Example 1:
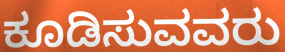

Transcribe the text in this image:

ಕೂಡಿಸುವವರು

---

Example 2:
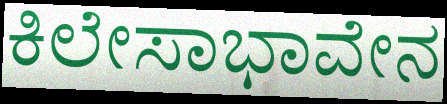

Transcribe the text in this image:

ಕಿಲೇಸಾಭಾವೇನ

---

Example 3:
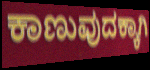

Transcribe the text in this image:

ಕಾಣುವುದಕ್ಕಾಗಿ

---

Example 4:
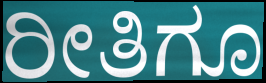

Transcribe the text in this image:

ರೀತಿಗೂ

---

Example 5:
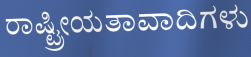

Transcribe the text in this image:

ರಾಷ್ಟ್ರೀಯತಾವಾದಿಗಳು